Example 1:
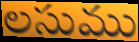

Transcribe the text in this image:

లసుము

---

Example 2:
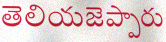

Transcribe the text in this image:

తెలియజెప్పారు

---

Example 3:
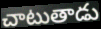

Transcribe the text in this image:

చాటుతాడు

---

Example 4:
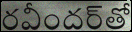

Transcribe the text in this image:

రవీందర్‌తో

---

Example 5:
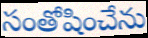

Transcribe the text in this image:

సంతోషించేను